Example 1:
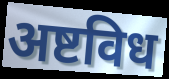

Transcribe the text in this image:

अष्टविध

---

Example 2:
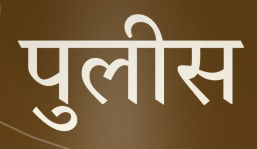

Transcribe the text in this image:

पुलीस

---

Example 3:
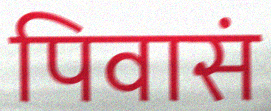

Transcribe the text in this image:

पिवासं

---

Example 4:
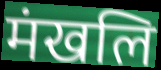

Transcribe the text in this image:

मंखलि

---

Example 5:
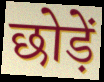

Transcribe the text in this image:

छोड़ें